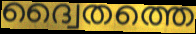
ദ്വൈതത്തെ